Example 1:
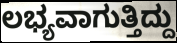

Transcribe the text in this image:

ಲಭ್ಯವಾಗುತ್ತಿದ್ದು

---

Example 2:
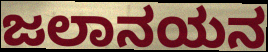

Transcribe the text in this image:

ಜಲಾನಯನ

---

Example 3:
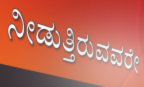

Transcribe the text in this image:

ನೀಡುತ್ತಿರುವವರೇ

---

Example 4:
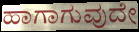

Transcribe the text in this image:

ಹಾಗಾಗುವುದೇ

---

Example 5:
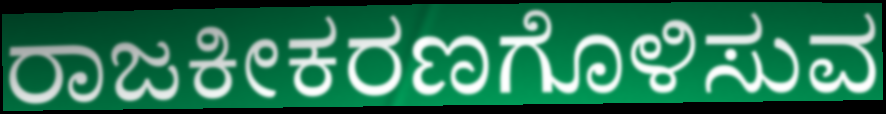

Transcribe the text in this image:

ರಾಜಕೀಕರಣಗೊಳಿಸುವ